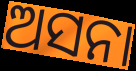
ଅସନା